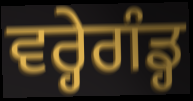
ਵਰ੍ਹੇਗੰਡ੍ਹ